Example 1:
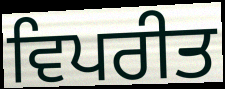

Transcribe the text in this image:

ਵਿਪਰੀਤ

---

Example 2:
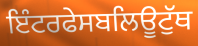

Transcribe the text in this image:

ਇੰਟਰਫੇਸਬਲਿਊਟੁੱਥ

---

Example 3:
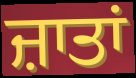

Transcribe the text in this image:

ਜ਼ਾਤਾਂ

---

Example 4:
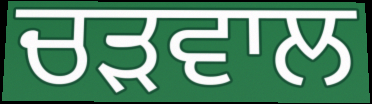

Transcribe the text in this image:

ਚੜਵਾਲ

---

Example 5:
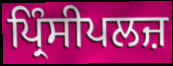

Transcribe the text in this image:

ਪ੍ਰਿੰਸੀਪਲਜ਼